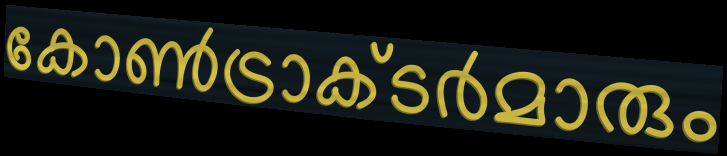
കോൺട്രാക്ടർമാരും